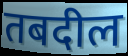
तबदील